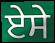
ਏਸੇ